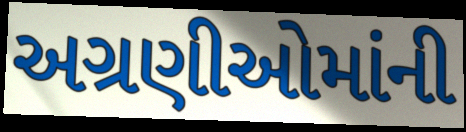
અગ્રણીઓમાંની